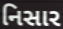
નિસાર